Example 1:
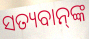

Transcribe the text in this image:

ସତ୍ୟବାନ୍‌ଙ୍କ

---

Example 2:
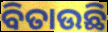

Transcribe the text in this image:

ବିତାଉଛି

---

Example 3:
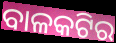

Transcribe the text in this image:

ବାଳକଟିର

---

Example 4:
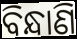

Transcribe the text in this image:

ବିନ୍ଧାଣି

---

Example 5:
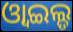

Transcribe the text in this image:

ଓ୍ବାଇଲ୍ଡ